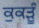
ਕੁਕੜੂੰ